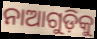
ନାଆଗୁଡ଼ିକୁ